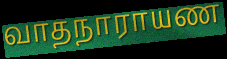
வாதநாராயண